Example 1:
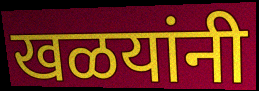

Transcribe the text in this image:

खळयांनी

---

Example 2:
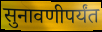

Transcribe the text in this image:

सुनावणीपर्यंत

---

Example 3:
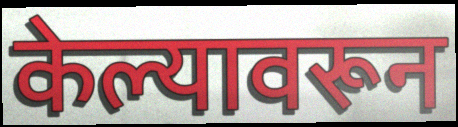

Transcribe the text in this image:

केल्यावरून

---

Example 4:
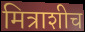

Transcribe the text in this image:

मित्राशीच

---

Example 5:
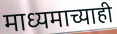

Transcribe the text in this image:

माध्यमाच्याही